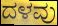
ದಳವು